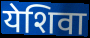
येशिवा